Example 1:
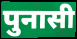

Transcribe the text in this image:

पुनासी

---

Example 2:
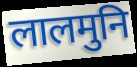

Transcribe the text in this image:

लालमुनि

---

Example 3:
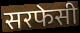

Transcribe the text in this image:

सरफेसी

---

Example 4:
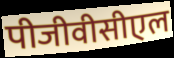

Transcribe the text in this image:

पीजीवीसीएल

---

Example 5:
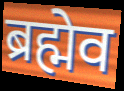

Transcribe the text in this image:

ब्रह्मेव